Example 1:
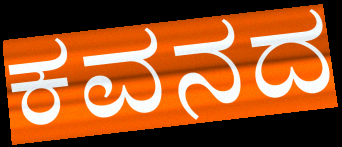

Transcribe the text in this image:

ಕವನದ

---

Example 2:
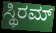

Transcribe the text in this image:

ಸ್ಥಿರಮ್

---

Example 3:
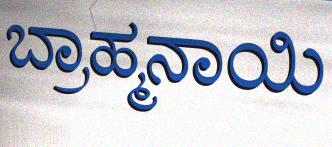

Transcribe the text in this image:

ಬ್ರಾಹ್ಮನಾಯಿ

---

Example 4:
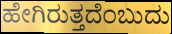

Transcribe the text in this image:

ಹೇಗಿರುತ್ತದೆಂಬುದು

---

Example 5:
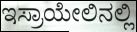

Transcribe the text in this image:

ಇಸ್ರಾಯೇಲಿನಲ್ಲಿ